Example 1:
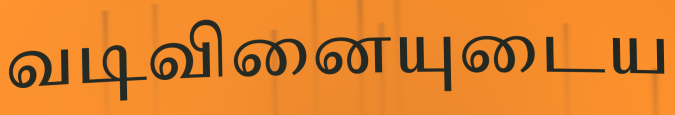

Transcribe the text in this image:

வடிவினையுடைய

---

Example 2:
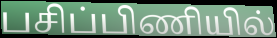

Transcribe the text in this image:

பசிப்பிணியில்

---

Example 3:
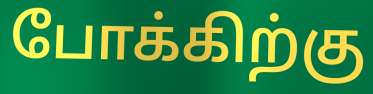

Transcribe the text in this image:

போக்கிற்கு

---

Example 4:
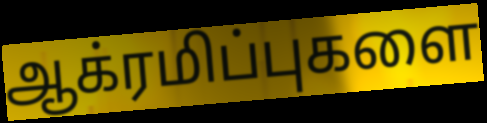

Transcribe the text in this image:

ஆக்ரமிப்புகளை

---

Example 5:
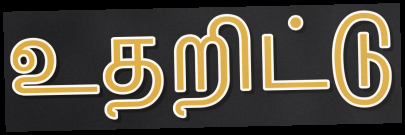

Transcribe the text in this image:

உதறிட்டு